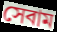
সেবাম